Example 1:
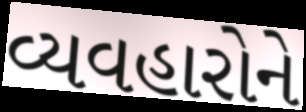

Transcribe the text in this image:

વ્યવહારોને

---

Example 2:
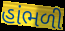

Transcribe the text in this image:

હાંભળી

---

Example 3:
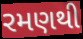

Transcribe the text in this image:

રમણથી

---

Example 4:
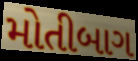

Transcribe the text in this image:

મોતીબાગ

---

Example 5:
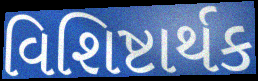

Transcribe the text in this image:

વિશિષ્ટાર્થક